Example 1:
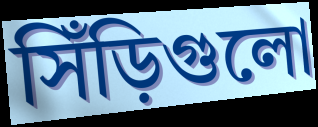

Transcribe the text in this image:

সিঁড়িগুলো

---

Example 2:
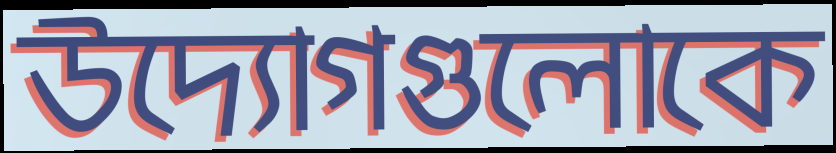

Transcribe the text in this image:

উদ্যোগগুলোকে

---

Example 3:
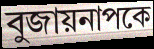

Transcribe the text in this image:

বুজায়নাপকে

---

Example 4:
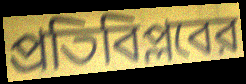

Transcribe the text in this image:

প্রতিবিপ্লবের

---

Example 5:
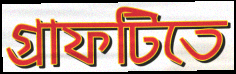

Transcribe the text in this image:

গ্রাফটিতে